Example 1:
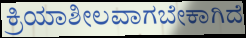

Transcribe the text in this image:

ಕ್ರಿಯಾಶೀಲವಾಗಬೇಕಾಗಿದೆ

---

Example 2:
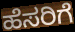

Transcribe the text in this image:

ಹೆಸರಿಗೆ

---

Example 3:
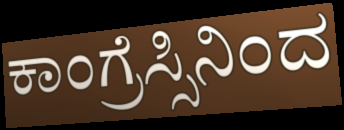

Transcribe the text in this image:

ಕಾಂಗ್ರೆಸ್ಸಿನಿಂದ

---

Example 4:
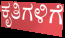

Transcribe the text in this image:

ಕೃತಿಗಳಿಗೆ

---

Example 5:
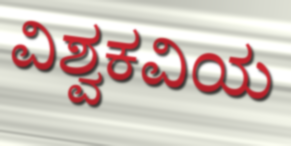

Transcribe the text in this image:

ವಿಶ್ವಕವಿಯ